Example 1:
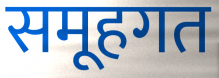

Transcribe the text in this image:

समूहगत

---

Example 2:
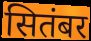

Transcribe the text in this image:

सितंबर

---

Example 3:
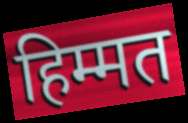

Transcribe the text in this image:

हिम्मत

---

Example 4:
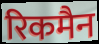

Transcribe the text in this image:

रिकमैन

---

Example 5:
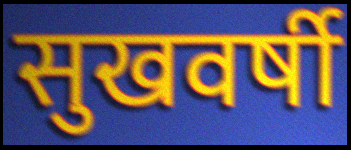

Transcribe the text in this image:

सुखवर्षी